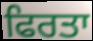
ਫਿਰਤਾ